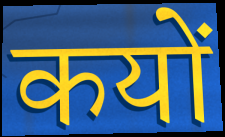
कयों